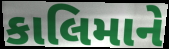
કાલિમાને